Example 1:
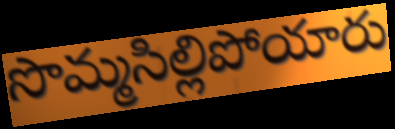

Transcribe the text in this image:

సొమ్మసిల్లిపోయారు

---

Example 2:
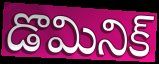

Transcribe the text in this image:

డొమినిక్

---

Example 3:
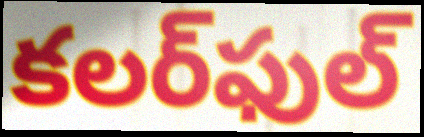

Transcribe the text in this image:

కలర్‌ఫుల్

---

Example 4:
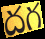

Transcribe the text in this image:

దగ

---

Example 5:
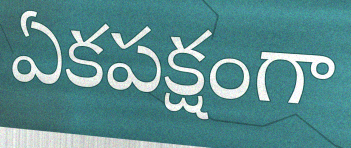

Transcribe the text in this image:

ఏకపక్షంగా